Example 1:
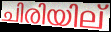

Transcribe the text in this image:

ചിരിയില്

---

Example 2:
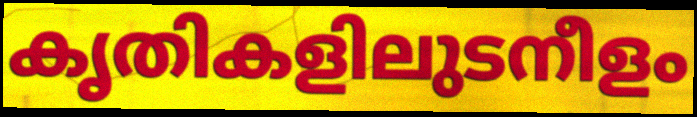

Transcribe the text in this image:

കൃതികളിലുടനീളം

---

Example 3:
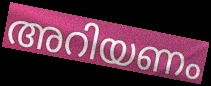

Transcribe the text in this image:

അറിയണം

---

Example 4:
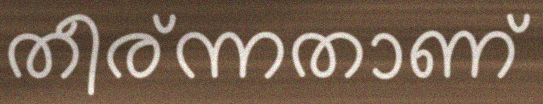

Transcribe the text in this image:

തീര്ന്നതാണ്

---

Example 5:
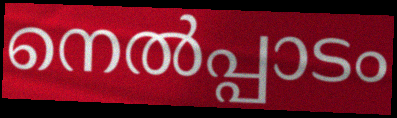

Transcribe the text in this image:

നെൽപ്പാടം